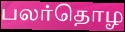
பலர்தொழ